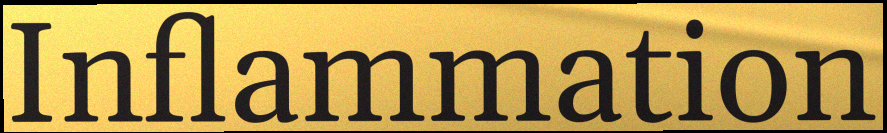
Inflammation